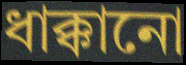
ধাক্কানো